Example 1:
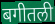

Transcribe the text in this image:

बगीतली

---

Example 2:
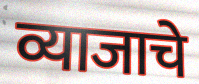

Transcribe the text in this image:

व्याजाचे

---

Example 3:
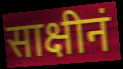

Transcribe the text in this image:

साक्षीनं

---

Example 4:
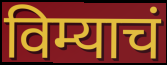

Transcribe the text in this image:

विम्याचं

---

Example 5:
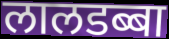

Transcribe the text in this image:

लालडब्बा